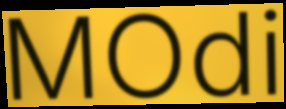
MOdi